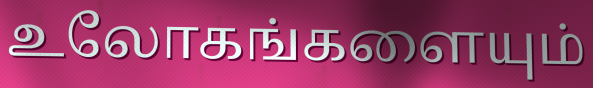
உலோகங்களையும்